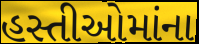
હસ્તીઓમાંના